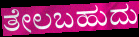
ತೇಲಬಹುದು